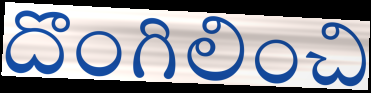
దొంగిలించి